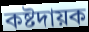
কষ্টদায়ক